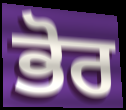
ਭੋਰ